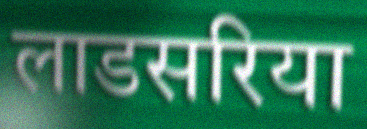
लाडसरिया